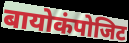
बायोकंपोजिट